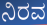
ನಿರವ